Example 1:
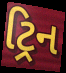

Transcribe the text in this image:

ટ્રિન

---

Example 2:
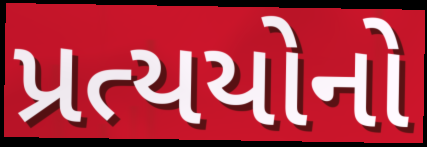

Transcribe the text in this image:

પ્રત્યયોનો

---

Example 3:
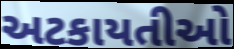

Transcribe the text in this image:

અટકાયતીઓ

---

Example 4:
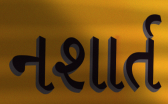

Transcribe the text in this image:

નશાર્ત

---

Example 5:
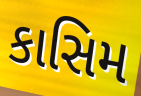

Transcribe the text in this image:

કાસિમ